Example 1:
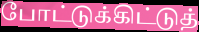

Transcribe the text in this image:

போட்டுக்கிட்டுத்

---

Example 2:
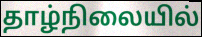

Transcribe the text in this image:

தாழ்நிலையில்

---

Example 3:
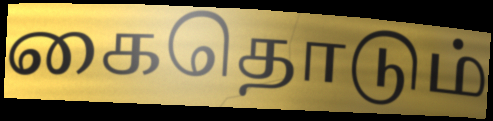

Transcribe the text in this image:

கைதொடும்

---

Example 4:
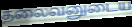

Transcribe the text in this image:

தலைவனுடைய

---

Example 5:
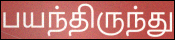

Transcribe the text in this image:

பயந்திருந்து